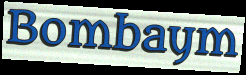
Bombaym